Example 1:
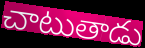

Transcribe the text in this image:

చాటుతాడు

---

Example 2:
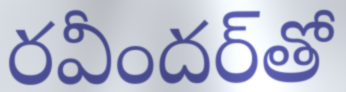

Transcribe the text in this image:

రవీందర్‌తో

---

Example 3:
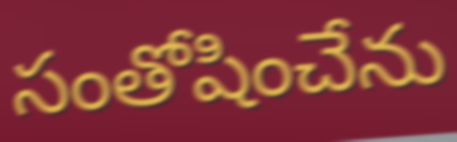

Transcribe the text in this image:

సంతోషించేను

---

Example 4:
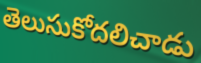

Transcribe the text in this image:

తెలుసుకోదలిచాడు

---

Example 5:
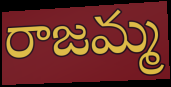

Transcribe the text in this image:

రాజమ్మ